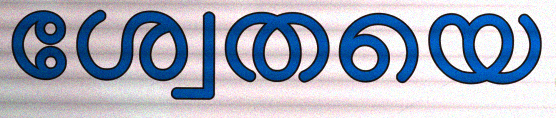
ശ്വേതയെ